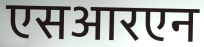
एसआरएन